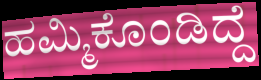
ಹಮ್ಮಿಕೊಂಡಿದ್ದೆ